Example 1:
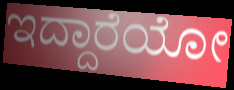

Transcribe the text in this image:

ಇದ್ದಾರೆಯೋ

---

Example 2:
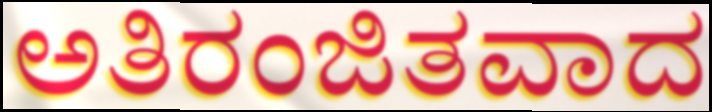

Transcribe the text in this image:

ಅತಿರಂಜಿತವಾದ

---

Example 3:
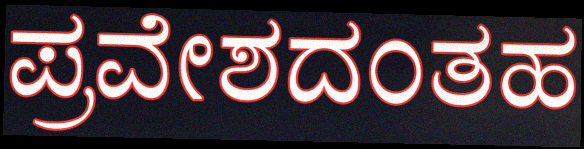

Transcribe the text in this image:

ಪ್ರವೇಶದಂತಹ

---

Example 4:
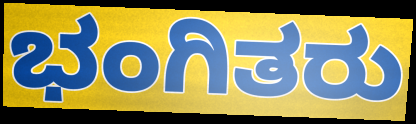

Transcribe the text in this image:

ಭಂಗಿತರು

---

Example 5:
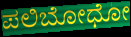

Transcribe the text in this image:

ಪಲಿಬೋಧೋ